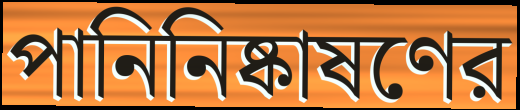
পানিনিষ্কাষণের